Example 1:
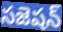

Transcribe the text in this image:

సజెషన్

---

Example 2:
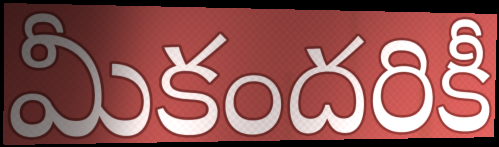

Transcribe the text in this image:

మీకందరికీ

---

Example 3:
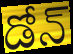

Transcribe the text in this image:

డోన్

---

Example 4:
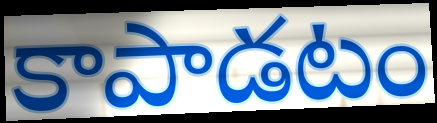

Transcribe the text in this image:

కాపాడటం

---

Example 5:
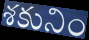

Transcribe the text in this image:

శకునిం